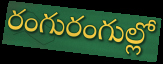
రంగురంగుల్లో